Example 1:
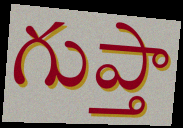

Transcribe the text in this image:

గుప్తా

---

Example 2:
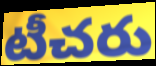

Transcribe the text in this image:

టీచరు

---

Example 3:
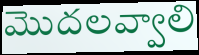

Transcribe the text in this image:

మొదలవ్వాలి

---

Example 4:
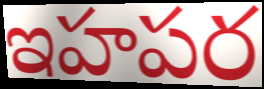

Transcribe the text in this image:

ఇహపర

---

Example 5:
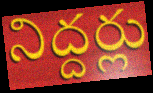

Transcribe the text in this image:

నిద్దర్లు